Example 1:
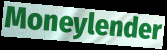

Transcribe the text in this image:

Moneylender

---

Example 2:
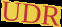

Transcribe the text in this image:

UDR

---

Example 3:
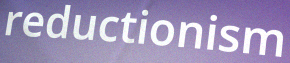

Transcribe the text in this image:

reductionism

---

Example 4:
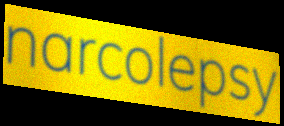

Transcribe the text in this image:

narcolepsy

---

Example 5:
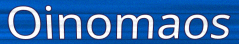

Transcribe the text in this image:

Oinomaos